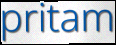
pritam